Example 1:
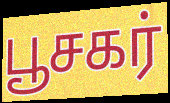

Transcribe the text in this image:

பூசகர்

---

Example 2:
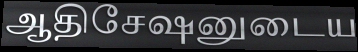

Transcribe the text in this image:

ஆதிசேஷனுடைய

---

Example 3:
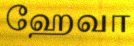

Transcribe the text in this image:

ஹேவா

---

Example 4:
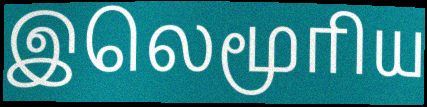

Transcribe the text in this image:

இலெமூரிய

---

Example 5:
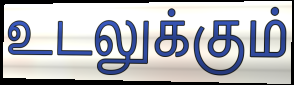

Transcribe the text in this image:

உடலுக்கும்